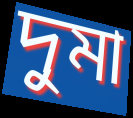
দুমা